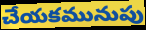
చేయకమునుపు